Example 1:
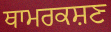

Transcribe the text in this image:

ਥਾਮਰਕਸ਼ਣ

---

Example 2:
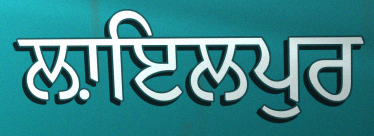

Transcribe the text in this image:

ਲ਼ਾਇਲਪੁਰ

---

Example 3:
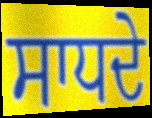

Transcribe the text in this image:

ਸਾਧਦੇ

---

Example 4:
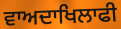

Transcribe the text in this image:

ਵਾਅਦਾਖਿਲਾਫੀ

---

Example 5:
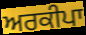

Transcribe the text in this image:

ਅਰਕੀਪਾ